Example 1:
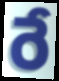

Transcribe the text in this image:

రే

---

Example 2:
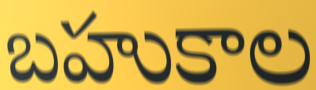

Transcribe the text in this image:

బహుకాల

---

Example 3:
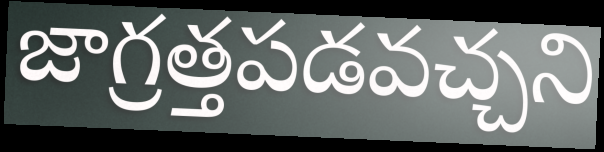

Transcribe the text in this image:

జాగ్రత్తపడవచ్చని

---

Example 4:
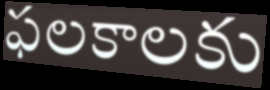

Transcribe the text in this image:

ఫలకాలకు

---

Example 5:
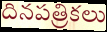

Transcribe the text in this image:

దినపత్రికలు